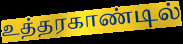
உத்தரகாண்டில்